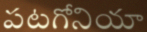
పటగోనియా